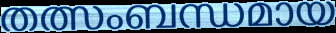
തത്സംബന്ധമായ